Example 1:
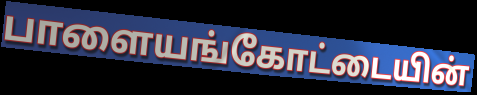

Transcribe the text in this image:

பாளையங்கோட்டையின்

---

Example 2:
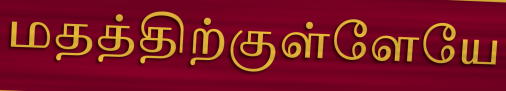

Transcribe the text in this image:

மதத்திற்குள்ளேயே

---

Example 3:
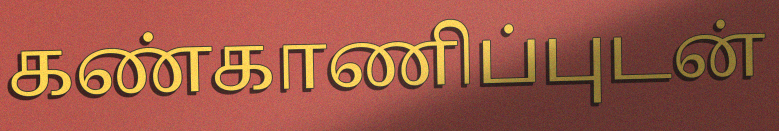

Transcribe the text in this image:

கண்காணிப்புடன்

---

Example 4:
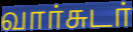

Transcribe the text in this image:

வார்சுடர்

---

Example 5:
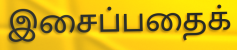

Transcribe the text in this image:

இசைப்பதைக்